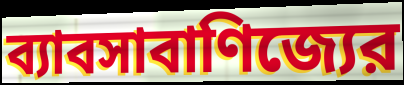
ব্যাবসাবাণিজ্যের